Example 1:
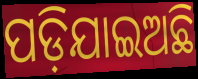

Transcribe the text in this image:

ପଡ଼ିଯାଇଅଛି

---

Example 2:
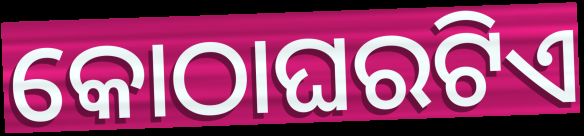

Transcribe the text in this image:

କୋଠାଘରଟିଏ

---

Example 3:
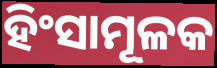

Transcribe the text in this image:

ହିଂସାମୂଳକ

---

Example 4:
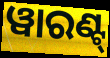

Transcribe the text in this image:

ୱାରଣ୍ଟ୍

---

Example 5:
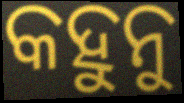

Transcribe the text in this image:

କହୁନୁ